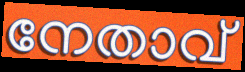
നേതാവ്